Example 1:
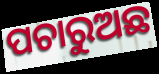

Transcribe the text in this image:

ପଚାରୁଅଛ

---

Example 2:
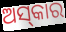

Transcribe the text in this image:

ଅସ୍‌କାର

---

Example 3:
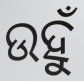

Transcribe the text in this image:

ଉହୁଁ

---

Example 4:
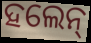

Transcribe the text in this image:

ହଲେନ୍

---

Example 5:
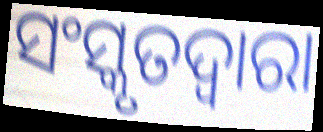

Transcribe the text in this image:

ସଂସ୍କୃତଦ୍ୱାରା